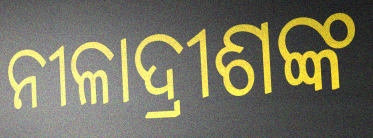
ନୀଳାଦ୍ରୀଶଙ୍କ